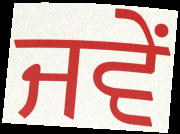
ਜਵੇਂ